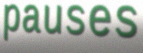
pauses